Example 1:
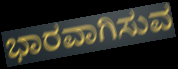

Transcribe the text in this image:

ಭಾರವಾಗಿಸುವ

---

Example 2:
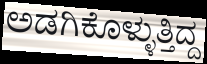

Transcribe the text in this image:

ಅಡಗಿಕೊಳ್ಳುತ್ತಿದ್ದ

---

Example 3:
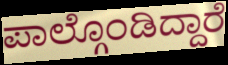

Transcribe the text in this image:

ಪಾಲ್ಗೊಂಡಿದ್ದಾರೆ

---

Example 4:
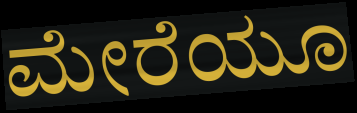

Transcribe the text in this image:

ಮೇರೆಯೂ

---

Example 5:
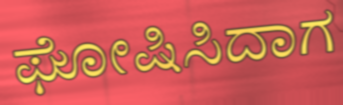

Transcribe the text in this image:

ಘೋಷಿಸಿದಾಗ